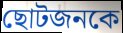
ছোটজনকে